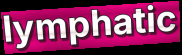
lymphatic